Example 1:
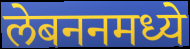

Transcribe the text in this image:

लेबननमध्ये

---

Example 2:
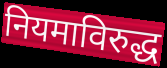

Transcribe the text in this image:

नियमाविरुद्ध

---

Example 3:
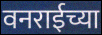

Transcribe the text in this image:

वनराईच्या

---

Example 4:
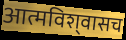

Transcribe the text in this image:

आत्मविश्वासच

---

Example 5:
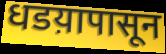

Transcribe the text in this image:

धडय़ापासून